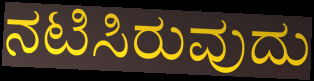
ನಟಿಸಿರುವುದು